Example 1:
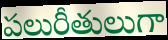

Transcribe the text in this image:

పలురీతులుగా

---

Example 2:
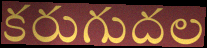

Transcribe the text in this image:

కరుగుదల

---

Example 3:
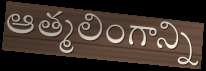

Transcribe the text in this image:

ఆత్మలింగాన్ని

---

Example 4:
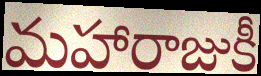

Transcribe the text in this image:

మహారాజుకీ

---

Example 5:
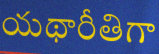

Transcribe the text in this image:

యథారీతిగా